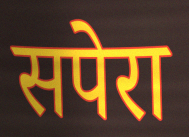
सपेरा